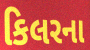
કિલરના